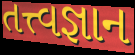
તત્ત્વજ્ઞાન